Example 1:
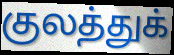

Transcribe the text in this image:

குலத்துக்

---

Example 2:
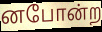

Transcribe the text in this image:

னபோன்ற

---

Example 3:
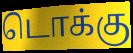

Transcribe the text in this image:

டொக்கு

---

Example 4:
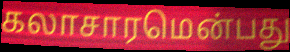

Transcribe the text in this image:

கலாசாரமென்பது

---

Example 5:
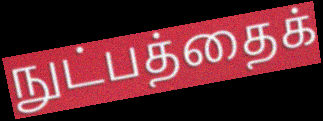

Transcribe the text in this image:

நுட்பத்தைக்